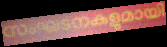
സംഘടനകളുമായി